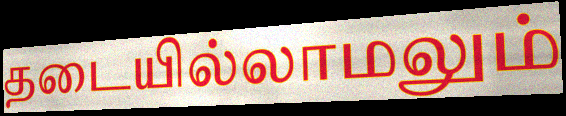
தடையில்லாமலும்